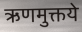
ऋणमुक्तये